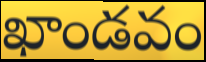
ఖాండవం